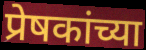
प्रेषकांच्या